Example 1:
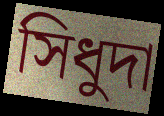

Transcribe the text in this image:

সিধুদা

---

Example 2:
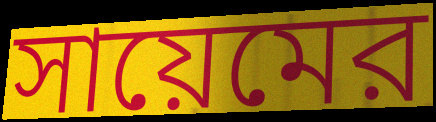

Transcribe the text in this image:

সায়েমের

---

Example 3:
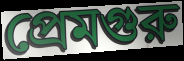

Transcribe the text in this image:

প্রেমগুরু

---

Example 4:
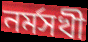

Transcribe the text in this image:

নর্মসখী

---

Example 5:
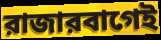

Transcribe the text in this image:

রাজারবাগেই